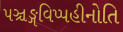
પઞ્ચઙ્ગવિપ્પહીનોતિ